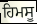
ਹਿਮਸੂ